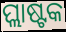
ପ୍ଲାଷ୍ଟକ